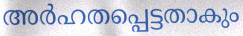
അർഹതപ്പെട്ടതാകും